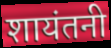
शायंतनी